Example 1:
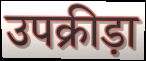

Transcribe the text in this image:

उपक्रीड़ा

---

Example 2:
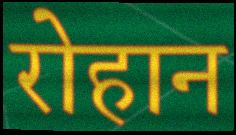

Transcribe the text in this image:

रोहान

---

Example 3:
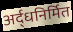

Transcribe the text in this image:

अर्द्धनिर्मित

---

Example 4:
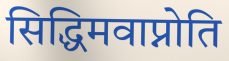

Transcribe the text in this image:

सिद्धिमवाप्नोति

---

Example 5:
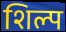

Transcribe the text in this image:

शिल्प